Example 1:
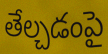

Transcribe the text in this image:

తేల్చడంపై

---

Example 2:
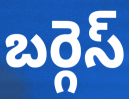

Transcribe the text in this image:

బర్గెస్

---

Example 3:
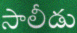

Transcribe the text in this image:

సాలీడు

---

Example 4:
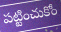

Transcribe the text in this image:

పట్టించుకోం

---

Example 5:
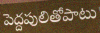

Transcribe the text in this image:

పెద్దపులితోపాటు